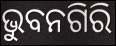
ଭୁବନଗିରି